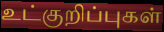
உட்குறிப்புகள்